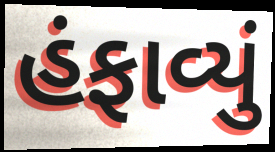
હંફાવ્યું